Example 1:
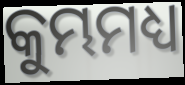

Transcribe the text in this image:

କୁମ୍ଭମଧ୍ୟ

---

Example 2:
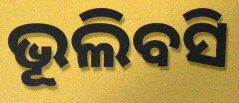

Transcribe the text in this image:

ଭୂଲିବସି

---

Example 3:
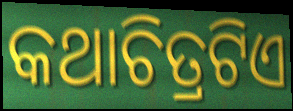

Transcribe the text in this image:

କଥାଚିତ୍ରଟିଏ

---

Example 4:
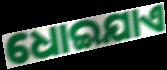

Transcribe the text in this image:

ଧୋଇଯାଏ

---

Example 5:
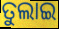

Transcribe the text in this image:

ତୁଲାଇ